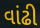
વાંઢી